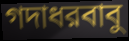
গদাধরবাবু